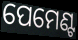
ପେମେଣ୍ଟ